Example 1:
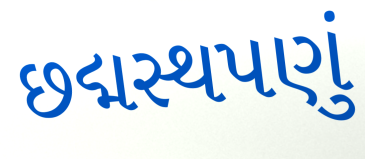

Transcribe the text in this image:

છદ્મસ્થપણું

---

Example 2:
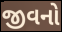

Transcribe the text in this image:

જીવનો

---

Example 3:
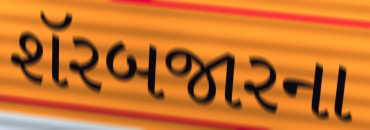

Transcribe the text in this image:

શૅરબજારના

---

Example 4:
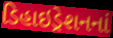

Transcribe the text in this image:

ડિહાઇડ્રેશનનાં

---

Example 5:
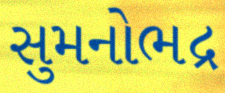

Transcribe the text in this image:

સુમનોભદ્ર